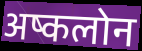
अष्कलोन